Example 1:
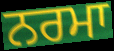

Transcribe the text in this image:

ਨਰਮਾ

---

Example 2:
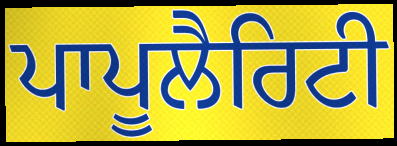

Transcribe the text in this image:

ਪਾਪੂਲੈਰਿਟੀ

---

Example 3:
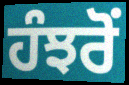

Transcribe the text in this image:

ਹੰਝਰੋਂ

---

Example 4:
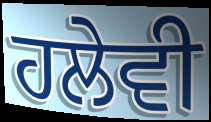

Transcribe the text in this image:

ਹਲੇਵੀ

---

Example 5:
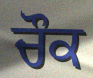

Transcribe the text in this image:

ਚੌਕ